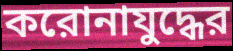
করোনাযুদ্ধের